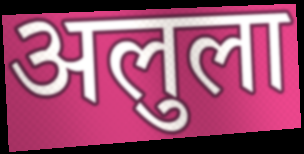
अलुला